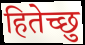
हितेच्छु